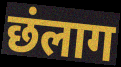
छंलाग